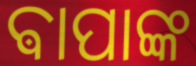
ଵାପାଙ୍କ